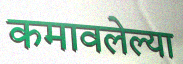
कमावलेल्या